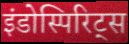
इंडोस्पिरिट्स